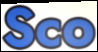
Sco